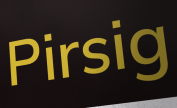
Pirsig